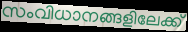
സംവിധാനങ്ങളിലേക്ക്